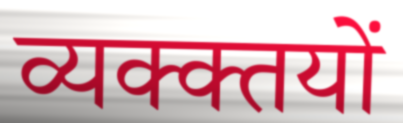
व्यक्क्तयों